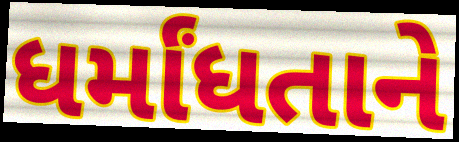
ધર્માંધતાને